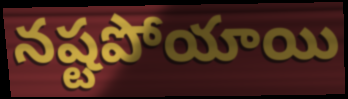
నష్టపోయాయి